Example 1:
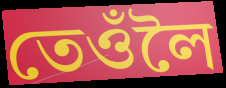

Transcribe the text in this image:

তেওঁলৈ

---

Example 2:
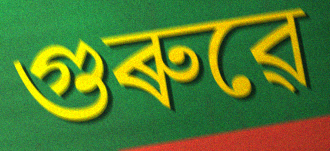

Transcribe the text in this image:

গুৰুৱে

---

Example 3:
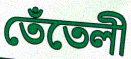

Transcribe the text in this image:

তেঁতেলী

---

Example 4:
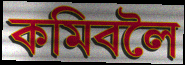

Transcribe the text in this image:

কমিবলৈ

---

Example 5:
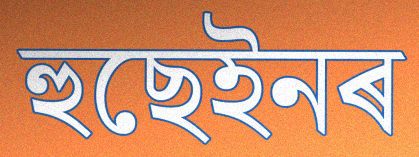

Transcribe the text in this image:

হুছেইনৰ